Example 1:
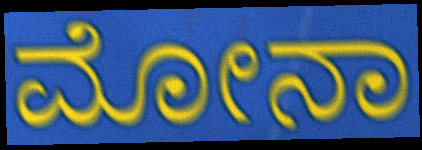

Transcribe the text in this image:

ಮೋನಾ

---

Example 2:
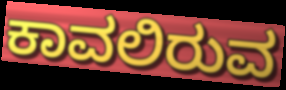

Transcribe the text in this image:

ಕಾವಲಿರುವ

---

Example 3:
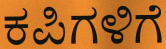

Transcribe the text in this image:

ಕಪಿಗಳಿಗೆ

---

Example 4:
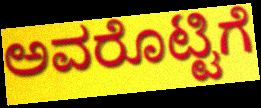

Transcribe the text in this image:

ಅವರೊಟ್ಟಿಗೆ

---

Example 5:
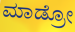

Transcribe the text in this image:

ಮಾಡ್ರೋ